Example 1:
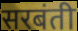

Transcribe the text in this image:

सरबंती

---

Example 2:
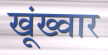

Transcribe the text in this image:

खूंख्वार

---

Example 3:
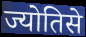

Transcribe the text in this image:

ज्योतिसे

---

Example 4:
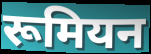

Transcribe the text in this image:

रूमियन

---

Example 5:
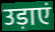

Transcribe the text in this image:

उड़ाएं